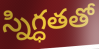
స్నిగ్ధతతో